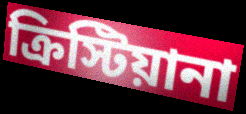
ক্রিস্টিয়ানা